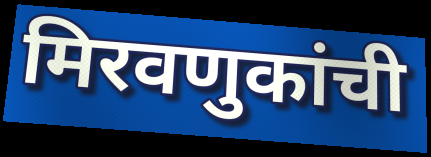
मिरवणुकांची